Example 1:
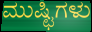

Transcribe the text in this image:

ಮುಷ್ಟಿಗಳು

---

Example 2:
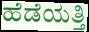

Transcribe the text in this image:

ಹೆಡೆಯತ್ತಿ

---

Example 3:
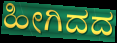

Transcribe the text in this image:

ಹೀಗಿದದ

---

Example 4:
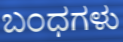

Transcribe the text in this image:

ಬಂಧಗಳು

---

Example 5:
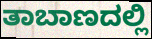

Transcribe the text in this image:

ತಾಬಾಣದಲ್ಲಿ